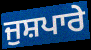
ਜੁਸ਼ਪਾਰੇ